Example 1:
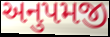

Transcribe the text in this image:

અનુપમજી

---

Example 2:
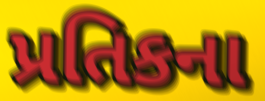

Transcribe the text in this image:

પ્રતિકના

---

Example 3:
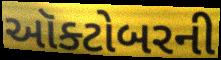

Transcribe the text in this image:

ઑક્ટોબરની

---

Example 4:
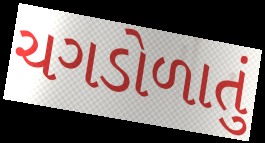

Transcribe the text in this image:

ચગડોળાતું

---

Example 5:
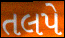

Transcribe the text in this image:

તલપે